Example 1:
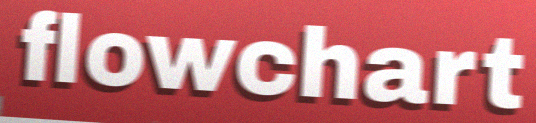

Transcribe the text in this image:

flowchart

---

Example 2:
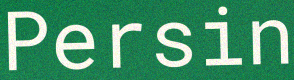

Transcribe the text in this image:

Persin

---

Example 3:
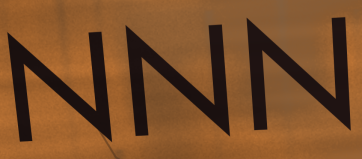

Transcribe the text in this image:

NNN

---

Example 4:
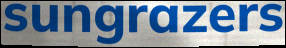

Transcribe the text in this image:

sungrazers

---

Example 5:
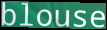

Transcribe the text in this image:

blouse